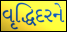
વૃદ્ધિદરને